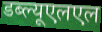
डब्ल्यूएलएल